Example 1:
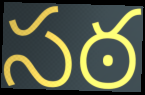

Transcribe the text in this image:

సఠ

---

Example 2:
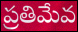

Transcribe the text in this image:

ప్రతిమేవ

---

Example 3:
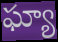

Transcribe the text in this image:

ఘ్యా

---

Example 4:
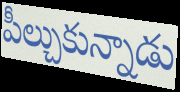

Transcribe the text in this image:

పీల్చుకున్నాడు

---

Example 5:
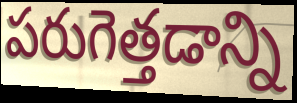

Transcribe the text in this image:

పరుగెత్తడాన్ని